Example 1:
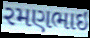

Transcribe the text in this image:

રમણભાઇ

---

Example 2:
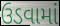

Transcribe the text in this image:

ઉડવામાં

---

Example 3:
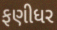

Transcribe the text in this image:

ફણીધર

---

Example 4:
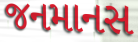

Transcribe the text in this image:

જનમાનસ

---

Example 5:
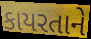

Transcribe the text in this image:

કાયરતાને